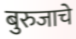
बुरुजाचे